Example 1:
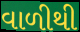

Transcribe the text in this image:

વાળીથી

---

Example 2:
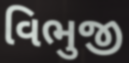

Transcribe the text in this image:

વિભુજી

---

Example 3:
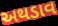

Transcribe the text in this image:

અથડાવ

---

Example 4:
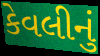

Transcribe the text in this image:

કેવલીનું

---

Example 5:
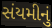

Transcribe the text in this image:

સંયમીનું